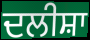
ਦਲੀਸ਼ਾ